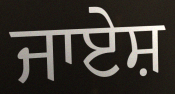
ਜਾਏਸ਼